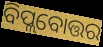
ବିପ୍ଲବୋତ୍ତର